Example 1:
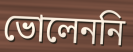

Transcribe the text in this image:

ভোলেননি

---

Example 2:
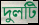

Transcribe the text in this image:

দুলটি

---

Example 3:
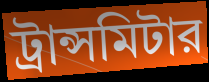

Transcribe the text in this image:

ট্রান্সমিটার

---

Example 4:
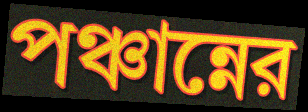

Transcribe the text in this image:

পঞ্চান্নের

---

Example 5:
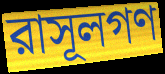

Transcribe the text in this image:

রাসূলগণ